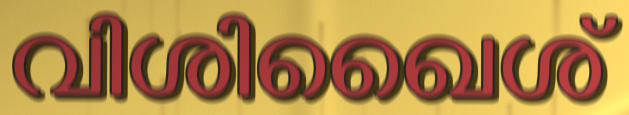
വിശിഖൈശ്